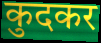
कुदकर